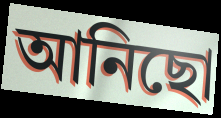
আনিছো